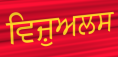
ਵਿਜ਼ੁਅਲਸ